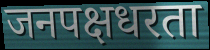
जनपक्षधरता